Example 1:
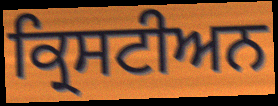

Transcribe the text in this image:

ਕ੍ਰਿਸਟੀਅਨ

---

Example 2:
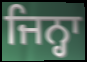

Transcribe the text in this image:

ਜਿਨ੍ਹ੍ਹਾ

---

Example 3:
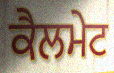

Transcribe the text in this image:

ਕੈਲਮੇਟ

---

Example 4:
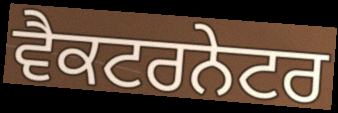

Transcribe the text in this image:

ਵੈਕਟਰਨੇਟਰ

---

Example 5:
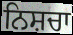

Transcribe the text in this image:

ਨਿਸ਼ਚਾ